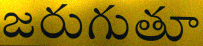
జరుగుతూ